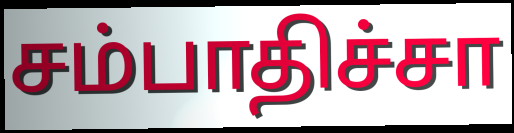
சம்பாதிச்சா